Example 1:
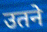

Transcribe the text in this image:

उतने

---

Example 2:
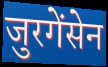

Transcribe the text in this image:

जुरगेंसेन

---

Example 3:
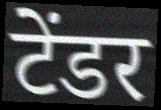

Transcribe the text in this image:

टेंडर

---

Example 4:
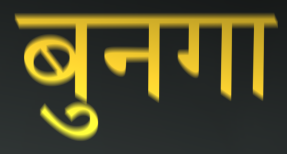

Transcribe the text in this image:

बुनगा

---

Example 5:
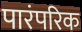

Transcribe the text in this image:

पारंपरिक